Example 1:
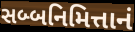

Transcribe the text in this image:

સબ્બનિમિત્તાનં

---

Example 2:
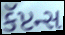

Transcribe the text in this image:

કૅપ્ટન્સ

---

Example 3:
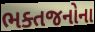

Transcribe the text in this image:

ભક્તજનોના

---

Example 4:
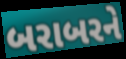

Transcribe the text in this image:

બરાબરને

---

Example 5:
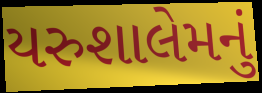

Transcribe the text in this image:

યરુશાલેમનું